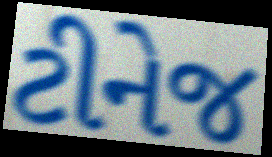
ટીનેજ